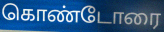
கொண்டோரை